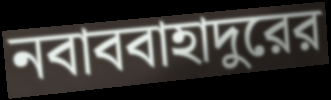
নবাববাহাদুরের